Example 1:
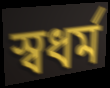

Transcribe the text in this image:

স্বধর্ম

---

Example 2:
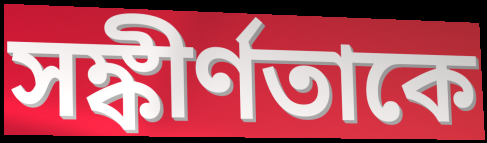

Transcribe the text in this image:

সঙ্কীর্ণতাকে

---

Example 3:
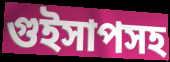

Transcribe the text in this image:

গুইসাপসহ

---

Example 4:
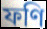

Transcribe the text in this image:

ফণি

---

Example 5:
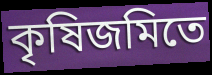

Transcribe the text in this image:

কৃষিজমিতে